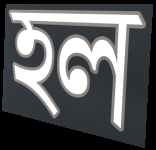
হল